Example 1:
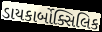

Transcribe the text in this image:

ડાયકાર્બોક્સિલિક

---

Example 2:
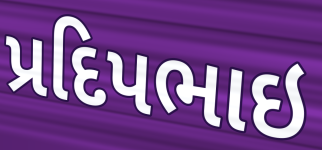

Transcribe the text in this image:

પ્રદિપભાઇ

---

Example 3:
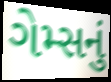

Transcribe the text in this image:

ગેમ્સનું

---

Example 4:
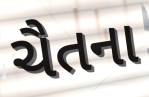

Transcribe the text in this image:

ચૈતના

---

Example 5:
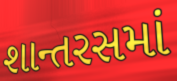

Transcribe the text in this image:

શાન્તરસમાં